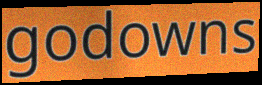
godowns